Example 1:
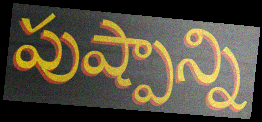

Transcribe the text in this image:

పుష్పాన్ని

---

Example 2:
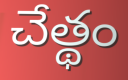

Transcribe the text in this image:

చేత్థం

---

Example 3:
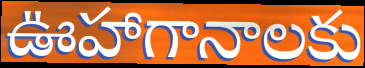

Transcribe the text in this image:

ఊహాగానాలకు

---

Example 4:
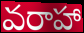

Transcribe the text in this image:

వరాహా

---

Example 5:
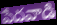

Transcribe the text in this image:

పేదవాడి